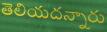
తెలియదన్నారు